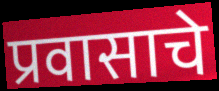
प्रवासाचे